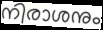
നിരാശനും